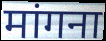
मांगना